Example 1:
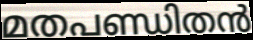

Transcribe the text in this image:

മതപണ്ഡിതൻ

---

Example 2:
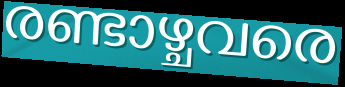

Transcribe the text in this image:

രണ്ടാഴ്ചവരെ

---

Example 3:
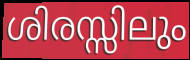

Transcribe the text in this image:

ശിരസ്സിലും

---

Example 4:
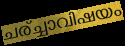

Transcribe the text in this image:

ചര്ച്ചാവിഷയം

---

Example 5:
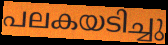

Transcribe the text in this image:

പലകയടിച്ചു